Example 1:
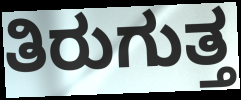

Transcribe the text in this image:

ತಿರುಗುತ್ತ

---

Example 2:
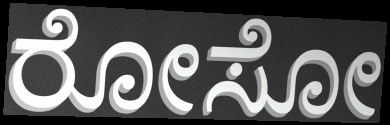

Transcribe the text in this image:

ರೋಸೋ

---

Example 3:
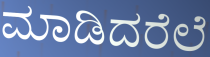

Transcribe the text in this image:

ಮಾಡಿದರೆಲೆ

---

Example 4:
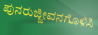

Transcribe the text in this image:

ಪುನರುಜ್ಜೀವನಗೊಳಿಸಿ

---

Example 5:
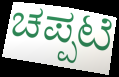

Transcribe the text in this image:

ಚಪ್ಪಟೆ